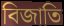
বিজাতি